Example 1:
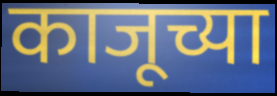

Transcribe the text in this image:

काजूच्या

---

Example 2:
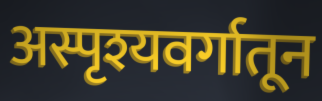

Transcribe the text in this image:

अस्पृश्यवर्गातून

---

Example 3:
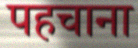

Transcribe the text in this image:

पहचाना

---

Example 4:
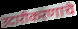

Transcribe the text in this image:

उदारीकरणाचे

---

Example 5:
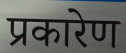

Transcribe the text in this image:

प्रकारेण